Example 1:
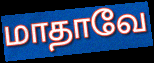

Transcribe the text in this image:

மாதாவே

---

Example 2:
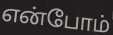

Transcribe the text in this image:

என்போம்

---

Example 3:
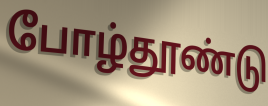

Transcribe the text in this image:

போழ்தூண்டு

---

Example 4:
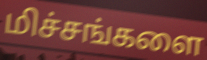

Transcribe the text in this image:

மிச்சங்களை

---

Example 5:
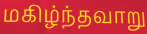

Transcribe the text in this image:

மகிழ்ந்தவாறு